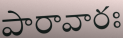
పారావారః